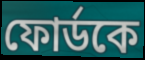
ফোর্ডকে